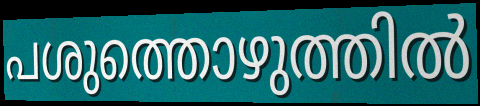
പശുത്തൊഴുത്തിൽ